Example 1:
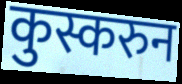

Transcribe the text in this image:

कुस्करुन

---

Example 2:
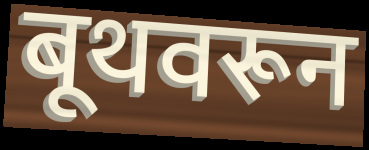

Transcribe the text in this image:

बूथवरून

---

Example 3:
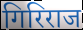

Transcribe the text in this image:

गिरिराज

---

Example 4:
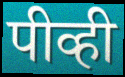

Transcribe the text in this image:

पीव्ही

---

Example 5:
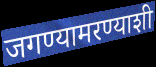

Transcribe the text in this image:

जगण्यामरण्याशी